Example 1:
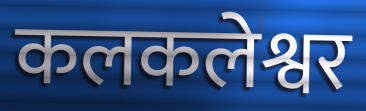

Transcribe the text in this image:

कलकलेश्वर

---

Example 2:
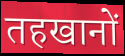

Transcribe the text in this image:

तहखानों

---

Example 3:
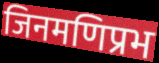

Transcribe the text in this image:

जिनमणिप्रभ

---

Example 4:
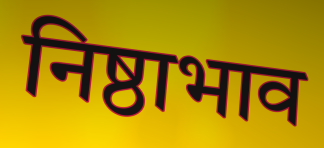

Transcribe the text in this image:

निष्ठाभाव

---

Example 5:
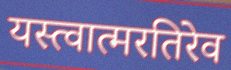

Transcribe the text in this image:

यस्त्वात्मरतिरेव